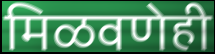
मिळवणेही